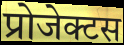
प्रोजेक्टस